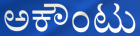
ಅಕೌಂಟು